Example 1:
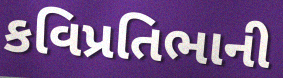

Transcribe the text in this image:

કવિપ્રતિભાની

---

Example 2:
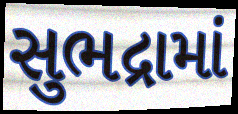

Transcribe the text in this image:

સુભદ્રામાં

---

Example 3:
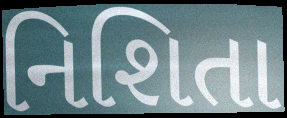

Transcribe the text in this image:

નિશિતા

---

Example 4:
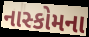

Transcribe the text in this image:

નાસ્કોમના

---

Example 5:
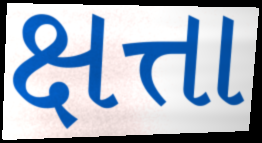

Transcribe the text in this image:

ક્ષત્તા